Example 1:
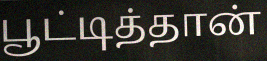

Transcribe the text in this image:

பூட்டித்தான்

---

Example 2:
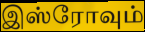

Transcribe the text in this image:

இஸ்ரோவும்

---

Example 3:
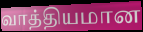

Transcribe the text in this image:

வாத்தியமான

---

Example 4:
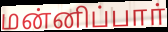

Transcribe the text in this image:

மன்னிப்பார்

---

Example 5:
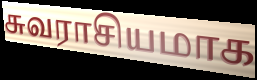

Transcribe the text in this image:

சுவராசியமாக